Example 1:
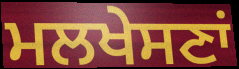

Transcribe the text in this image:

ਮਲਖੇਸਣਾਂ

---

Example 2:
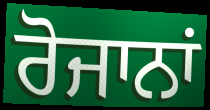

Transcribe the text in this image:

ਰੋਜਾਨਾਂ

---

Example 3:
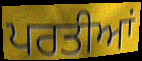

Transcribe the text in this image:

ਪਰਤੀਆਂ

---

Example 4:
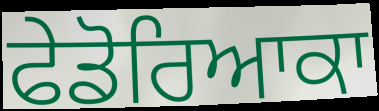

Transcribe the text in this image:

ਫੇਡੋਰਿਆਕਾ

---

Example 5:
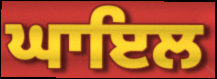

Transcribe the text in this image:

ਘਾਇਲ